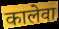
कालेवा